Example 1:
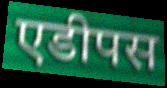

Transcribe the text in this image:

एडीपस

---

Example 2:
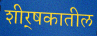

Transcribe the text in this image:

शीर्षकातील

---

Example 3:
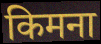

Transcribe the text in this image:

किमना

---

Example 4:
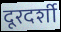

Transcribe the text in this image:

दूरदर्शी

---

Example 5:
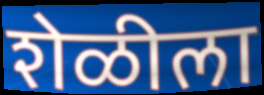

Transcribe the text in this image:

शेळीला